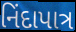
નિંદાપાત્ર